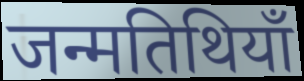
जन्मतिथियाँ